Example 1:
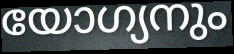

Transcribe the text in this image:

യോഗ്യനും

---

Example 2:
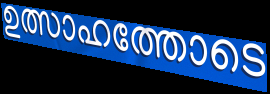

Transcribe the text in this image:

ഉത്സാഹത്തോടെ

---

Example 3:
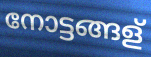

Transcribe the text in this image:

നോട്ടങ്ങള്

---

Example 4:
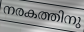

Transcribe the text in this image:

നരകത്തിനു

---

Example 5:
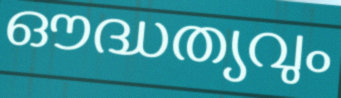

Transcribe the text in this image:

ഔദ്ധത്യവും